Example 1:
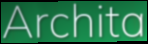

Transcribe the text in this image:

Archita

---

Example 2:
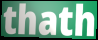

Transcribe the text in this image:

thath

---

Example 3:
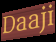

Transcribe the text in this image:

Daaji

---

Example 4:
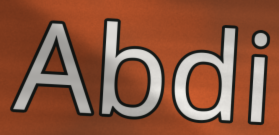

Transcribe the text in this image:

Abdi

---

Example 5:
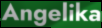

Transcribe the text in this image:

Angelika